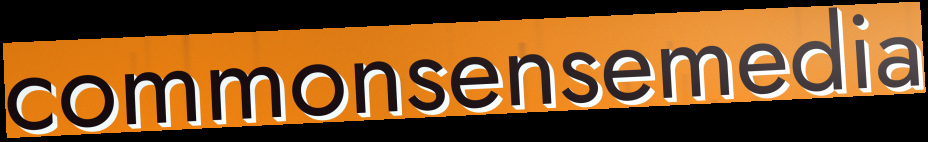
commonsensemedia